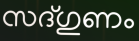
സദ്ഗുണം